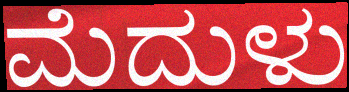
ಮೆದುಳು